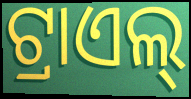
ଟ୍ରାଏଲ୍